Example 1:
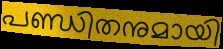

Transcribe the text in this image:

പണ്ഡിതനുമായി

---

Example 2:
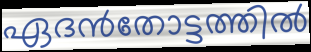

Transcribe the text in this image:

ഏദൻതോട്ടത്തിൽ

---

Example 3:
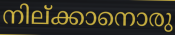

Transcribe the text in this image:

നില്ക്കാനൊരു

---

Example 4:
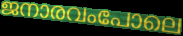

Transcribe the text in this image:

ജനാരവംപോലെ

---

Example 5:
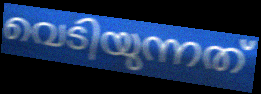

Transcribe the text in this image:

വെടിയുന്നത്